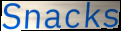
Snacks